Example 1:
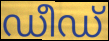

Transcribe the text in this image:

ഡീഡ്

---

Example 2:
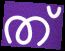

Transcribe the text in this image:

ത്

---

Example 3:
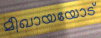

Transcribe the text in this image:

മീഖായയോട്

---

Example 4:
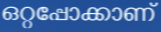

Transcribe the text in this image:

ഒറ്റപ്പോക്കാണ്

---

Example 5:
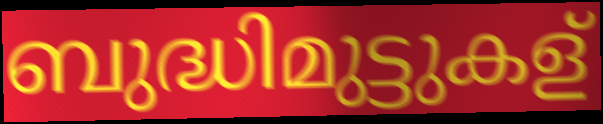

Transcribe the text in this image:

ബുദ്ധിമുട്ടുകള്